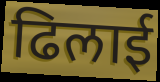
ढिलाई